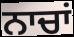
ਨਾਚਾਂ